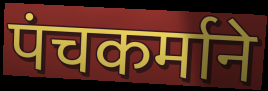
पंचकर्माने